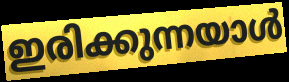
ഇരിക്കുന്നയാൾ